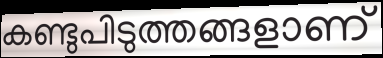
കണ്ടുപിടുത്തങ്ങളാണ്